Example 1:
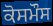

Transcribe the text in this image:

ਕੋਸਮੌਸ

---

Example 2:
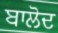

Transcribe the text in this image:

ਬਾਲੋਦ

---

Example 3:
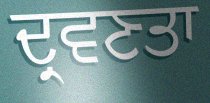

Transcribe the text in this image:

ਦ੍ਰਵਣਤਾ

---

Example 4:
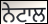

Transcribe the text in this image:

ਨੇਟਾਲ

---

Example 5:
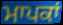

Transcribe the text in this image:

ਮਾਪਕਾਂ